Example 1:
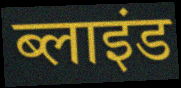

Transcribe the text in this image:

ब्लाइंड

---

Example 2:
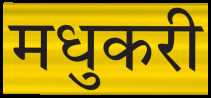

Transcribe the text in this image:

मधुकरी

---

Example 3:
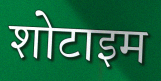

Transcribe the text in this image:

शोटाइम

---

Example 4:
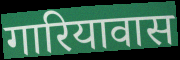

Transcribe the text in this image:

गारियावास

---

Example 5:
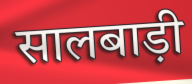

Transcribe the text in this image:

सालबाड़ी